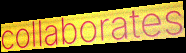
collaborates